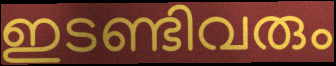
ഇടണ്ടിവരും